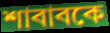
শাবাবকে